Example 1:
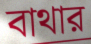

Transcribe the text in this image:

বাথার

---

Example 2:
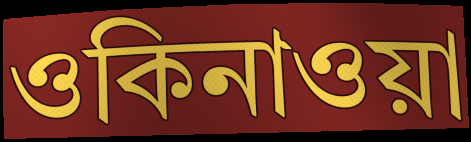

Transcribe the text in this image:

ওকিনাওয়া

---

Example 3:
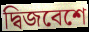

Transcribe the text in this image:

দ্বিজবেশে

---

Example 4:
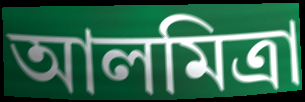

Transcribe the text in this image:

আলমিত্রা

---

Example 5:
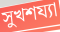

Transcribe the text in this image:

সুখশয্যা